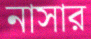
নাসার